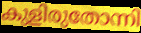
കുളിരുതോന്നി